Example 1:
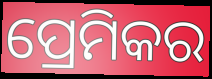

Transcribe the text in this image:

ପ୍ରେମିକର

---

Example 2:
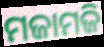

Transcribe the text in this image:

ମଜାମଜି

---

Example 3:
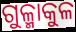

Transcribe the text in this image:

ଗୁଳ୍ମାକୁଳ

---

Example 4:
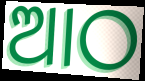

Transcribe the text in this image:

ଆଠ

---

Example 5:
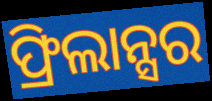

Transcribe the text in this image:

ଫ୍ରିଲାନ୍ସର